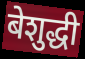
बेशुद्धी